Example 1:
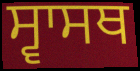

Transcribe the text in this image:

ਸ੍ਵਾਸਥ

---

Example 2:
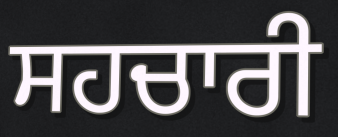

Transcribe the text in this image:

ਸਹਚਾਰੀ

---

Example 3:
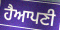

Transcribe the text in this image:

ਹੈਆਪਣੀ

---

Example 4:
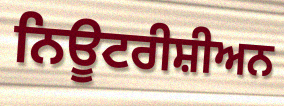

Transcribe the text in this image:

ਨਿਊਟਰੀਸ਼ੀਅਨ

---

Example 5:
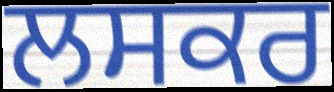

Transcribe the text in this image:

ਲਸਕਰ